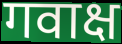
गवाक्ष